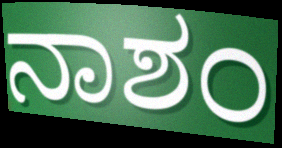
ನಾಶಂ